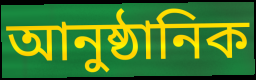
আনুষ্ঠানিক